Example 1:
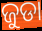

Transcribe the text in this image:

ଜୁଡା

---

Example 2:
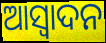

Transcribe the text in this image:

ଆସ୍ଵାଦନ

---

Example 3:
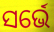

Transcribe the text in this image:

ସର୍ଭେ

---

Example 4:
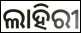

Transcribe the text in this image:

ଲାହିରୀ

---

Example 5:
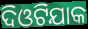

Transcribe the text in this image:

ଦିଓଟିଯାକ